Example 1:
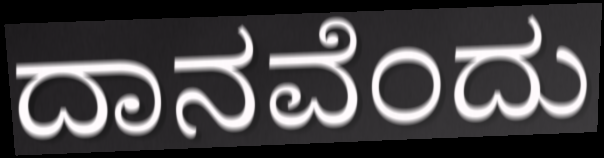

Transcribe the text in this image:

ದಾನವೆಂದು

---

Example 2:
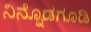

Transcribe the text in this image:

ನಿನ್ನೊಡಗೂಡಿ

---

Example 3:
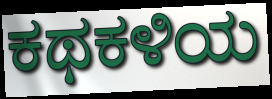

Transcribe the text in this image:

ಕಥಕಳಿಯ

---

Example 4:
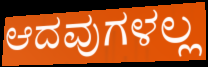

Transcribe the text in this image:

ಆದವುಗಳಲ್ಲ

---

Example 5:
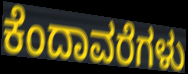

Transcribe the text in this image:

ಕೆಂದಾವರೆಗಳು